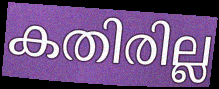
കതിരില്ല